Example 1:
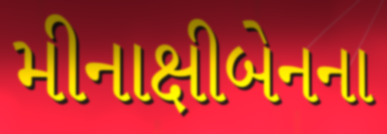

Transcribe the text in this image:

મીનાક્ષીબેનના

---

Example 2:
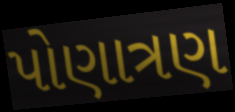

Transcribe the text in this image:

પોણાત્રણ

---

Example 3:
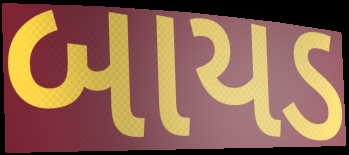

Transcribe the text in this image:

બાયડ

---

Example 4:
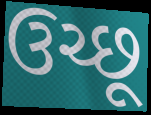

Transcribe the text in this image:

ઉચ્છૂ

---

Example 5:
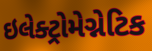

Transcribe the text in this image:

ઇલેક્ટ્રોમેગ્નેટિક